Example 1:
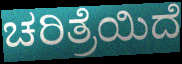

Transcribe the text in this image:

ಚರಿತ್ರೆಯಿದೆ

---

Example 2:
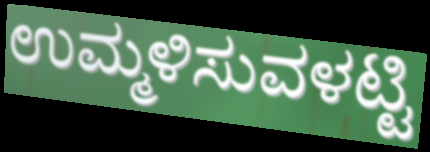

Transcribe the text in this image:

ಉಮ್ಮಳಿಸುವಳಟ್ಟಿ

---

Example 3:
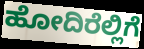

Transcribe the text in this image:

ಹೋದಿರೆಲ್ಲಿಗೆ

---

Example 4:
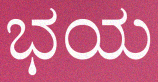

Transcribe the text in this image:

ಭಯ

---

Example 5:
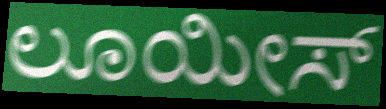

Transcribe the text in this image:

ಲೂಯೀಸ್